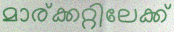
മാര്ക്കറ്റിലേക്ക്